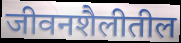
जीवनशैलीतील